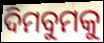
ଦିମବୁମକୁ